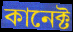
কানেক্ট